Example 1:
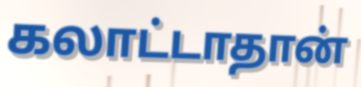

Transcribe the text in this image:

கலாட்டாதான்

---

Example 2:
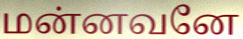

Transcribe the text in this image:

மன்னவனே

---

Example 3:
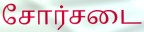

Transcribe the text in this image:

சோர்சடை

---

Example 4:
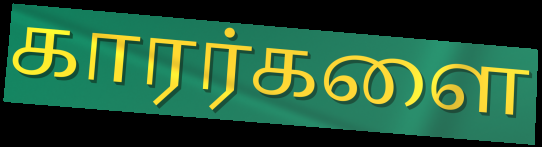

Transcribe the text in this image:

காரர்களை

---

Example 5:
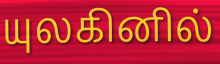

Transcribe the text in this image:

யுலகினில்